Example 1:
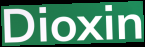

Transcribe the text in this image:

Dioxin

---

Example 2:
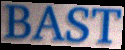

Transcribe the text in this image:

BAST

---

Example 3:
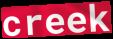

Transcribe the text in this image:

creek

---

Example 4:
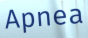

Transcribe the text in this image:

Apnea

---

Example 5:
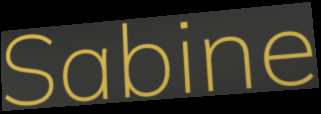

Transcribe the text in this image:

Sabine